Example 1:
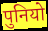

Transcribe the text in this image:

पुनियो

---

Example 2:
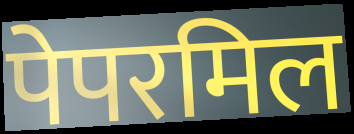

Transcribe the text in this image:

पेपरमिल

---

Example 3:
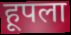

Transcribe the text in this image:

हूपला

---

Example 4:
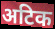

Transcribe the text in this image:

अटिक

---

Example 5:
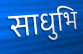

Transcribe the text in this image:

साधुभि